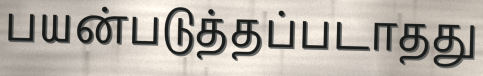
பயன்படுத்தப்படாதது